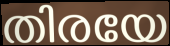
തിരയേ